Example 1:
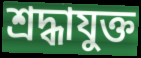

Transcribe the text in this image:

শ্রদ্ধাযুক্ত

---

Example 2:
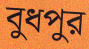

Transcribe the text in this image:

বুধপুর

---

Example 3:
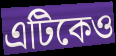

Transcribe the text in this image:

এটিকেও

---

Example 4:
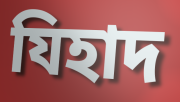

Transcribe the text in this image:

যিহাদ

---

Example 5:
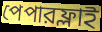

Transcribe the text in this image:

পেপারফ্লাই